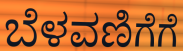
ಬೆಳವಣಿಗೆಗೆ